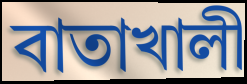
বাতাখালী